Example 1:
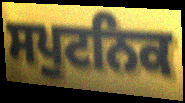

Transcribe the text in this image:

ਸਪੁਟਨਿਕ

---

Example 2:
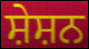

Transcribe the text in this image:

ਸ਼ੇਸ਼ਨ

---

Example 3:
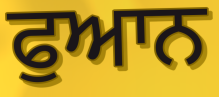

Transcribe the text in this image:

ਫੁਆਨ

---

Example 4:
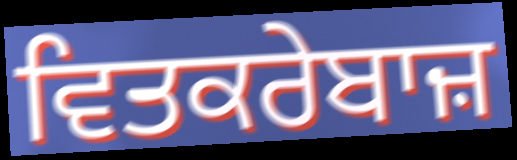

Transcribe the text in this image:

ਵਿਤਕਰੇਬਾਜ਼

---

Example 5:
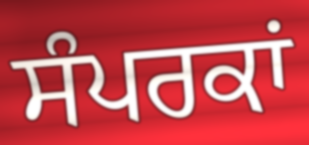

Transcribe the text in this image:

ਸੰਪਰਕਾਂ